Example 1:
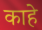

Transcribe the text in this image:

काहे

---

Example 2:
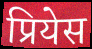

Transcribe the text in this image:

प्रियेस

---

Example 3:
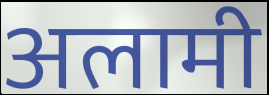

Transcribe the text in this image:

अलामी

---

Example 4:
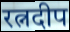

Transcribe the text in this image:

रत्नदीप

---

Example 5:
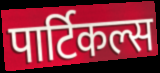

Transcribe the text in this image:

पार्टिकल्‍स